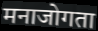
मनाजोगता